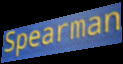
Spearman